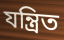
যন্ত্রিত